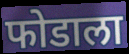
फोडाला